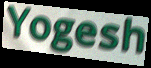
Yogesh